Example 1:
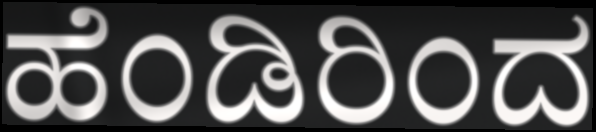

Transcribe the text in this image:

ಹೆಂಡಿರಿಂದ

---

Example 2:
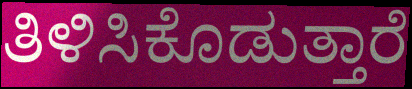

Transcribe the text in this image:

ತಿಳಿಸಿಕೊಡುತ್ತಾರೆ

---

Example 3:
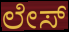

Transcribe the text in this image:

ಲೇಸ್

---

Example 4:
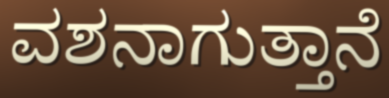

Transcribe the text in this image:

ವಶನಾಗುತ್ತಾನೆ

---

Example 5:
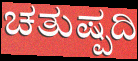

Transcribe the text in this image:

ಚತುಷ್ಪದಿ